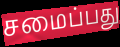
சமைப்பது